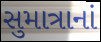
સુમાત્રાનાં